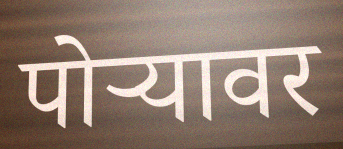
पोर्‍यावर